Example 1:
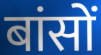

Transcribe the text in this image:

बांसों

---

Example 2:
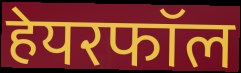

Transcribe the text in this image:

हेयरफॉल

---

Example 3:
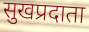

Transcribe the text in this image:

सुखप्रदाता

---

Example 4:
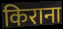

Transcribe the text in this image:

किराना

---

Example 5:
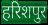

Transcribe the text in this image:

हरिशपुर